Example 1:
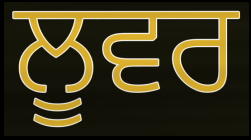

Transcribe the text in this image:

ਲੂਵਰ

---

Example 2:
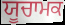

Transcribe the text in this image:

ਯੂਚਾਮਕ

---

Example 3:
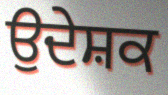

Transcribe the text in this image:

ਉਦੇਸ਼ਕ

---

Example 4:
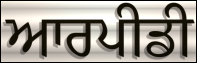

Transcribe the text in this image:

ਆਰਪੀਡੀ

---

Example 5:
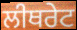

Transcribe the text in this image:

ਲੀਥਰੇਟ